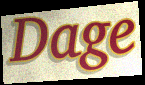
Dage